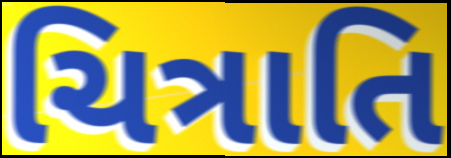
ચિત્રાતિ